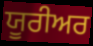
ਯੂਰੀਅਰ